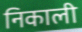
निकाली